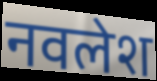
नवलेश